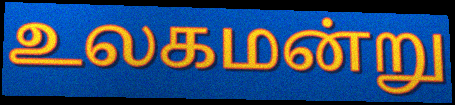
உலகமன்று